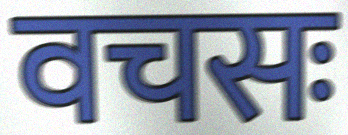
वचसः